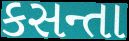
કસન્તા